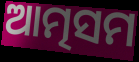
ଆତ୍ମସମ